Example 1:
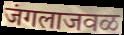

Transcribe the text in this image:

जंगलाजवळ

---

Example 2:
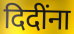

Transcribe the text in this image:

दिदींना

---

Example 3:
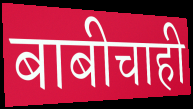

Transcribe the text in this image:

बाबीचाही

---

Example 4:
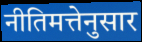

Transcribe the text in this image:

नीतिमत्तेनुसार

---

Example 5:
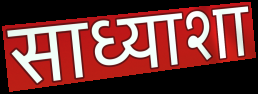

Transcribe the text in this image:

साध्याशा